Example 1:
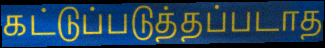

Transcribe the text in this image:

கட்டுப்படுத்தப்படாத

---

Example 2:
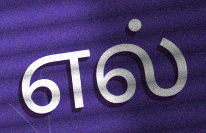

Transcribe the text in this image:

எல்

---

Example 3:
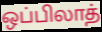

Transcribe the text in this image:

ஒப்பிலாத்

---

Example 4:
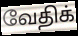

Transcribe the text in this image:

வேதிக்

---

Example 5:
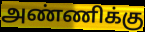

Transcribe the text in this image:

அண்ணிக்கு